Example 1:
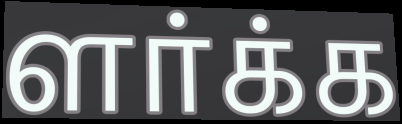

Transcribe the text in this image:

ளர்க்க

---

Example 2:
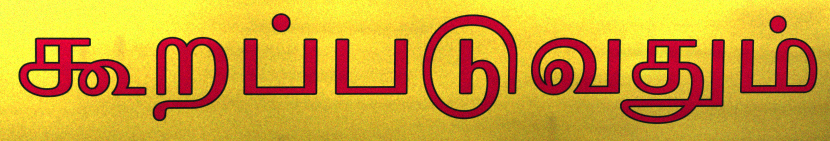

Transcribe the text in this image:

கூறப்படுவதும்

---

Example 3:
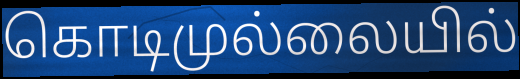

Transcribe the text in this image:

கொடிமுல்லையில்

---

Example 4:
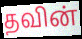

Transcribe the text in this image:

தவின்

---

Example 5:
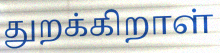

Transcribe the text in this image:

துறக்கிறாள்